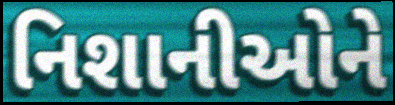
નિશાનીઓને